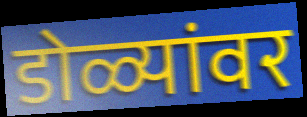
डोळ्यांवर